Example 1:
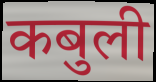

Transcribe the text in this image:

कबुली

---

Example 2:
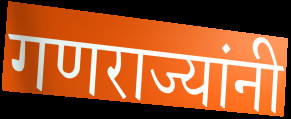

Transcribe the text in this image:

गणराज्यांनी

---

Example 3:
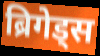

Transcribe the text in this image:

ब्रिगेड्स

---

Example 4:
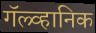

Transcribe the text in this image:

गॅल्व्हानिक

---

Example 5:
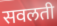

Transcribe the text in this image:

सवलती